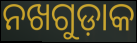
ନଖଗୁଡ଼ାକ